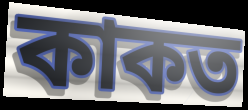
কাকত